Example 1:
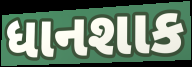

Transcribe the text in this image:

ધાનશાક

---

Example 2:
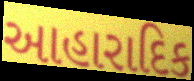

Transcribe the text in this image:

આહારાદિક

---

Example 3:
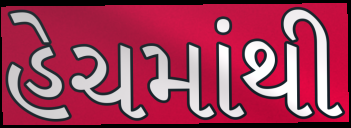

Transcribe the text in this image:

હેચમાંથી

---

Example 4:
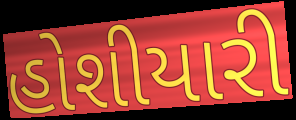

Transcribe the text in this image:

હોશીયારી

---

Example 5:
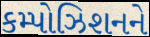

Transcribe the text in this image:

કમ્પોઝિશનને